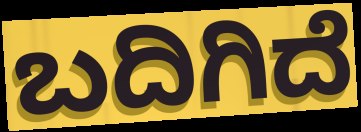
ಬದಿಗಿದೆ